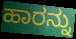
ಹಾರನ್ನು